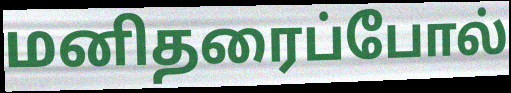
மனிதரைப்போல்